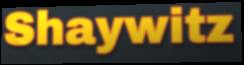
Shaywitz